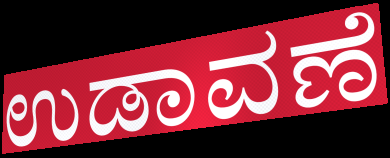
ಉಡಾವಣೆ